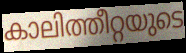
കാലിത്തീറ്റയുടെ